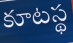
కూటస్థ